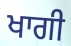
ਖਾਗੀ